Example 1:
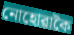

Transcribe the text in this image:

নোহোৱাকৈ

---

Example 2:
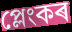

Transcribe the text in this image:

প্লেংকৰ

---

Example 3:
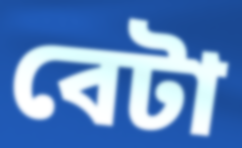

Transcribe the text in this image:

বেটা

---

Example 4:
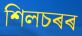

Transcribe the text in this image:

শিলচৰৰ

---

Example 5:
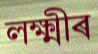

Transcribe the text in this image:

লক্ষ্মীৰ